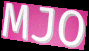
MJO